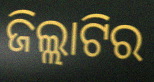
ଜିଲ୍ଲାଟିର